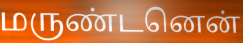
மருண்டனென்